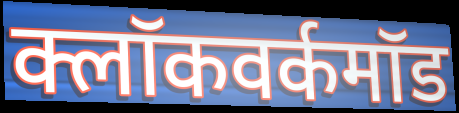
क्लॉकवर्कमॉड